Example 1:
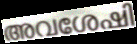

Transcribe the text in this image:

അവശേഷി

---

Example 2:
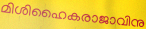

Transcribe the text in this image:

മിശിഹൈകരാജാവിനു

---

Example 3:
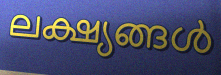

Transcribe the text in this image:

ലക്ഷ്യങ്ങൾ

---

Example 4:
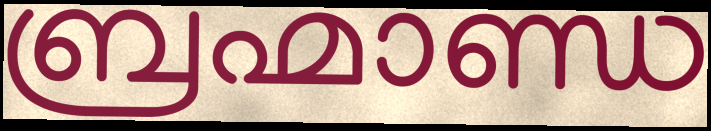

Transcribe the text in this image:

ബ്രഹ്മാണ്ഡ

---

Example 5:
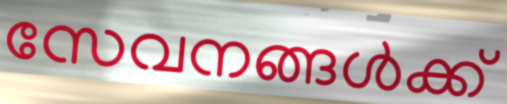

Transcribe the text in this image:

സേവനങ്ങൾക്ക്